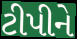
ટીપીને